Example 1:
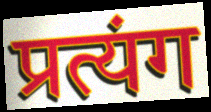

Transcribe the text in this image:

प्रत्यंग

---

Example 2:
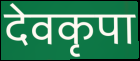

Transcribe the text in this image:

देवकृपा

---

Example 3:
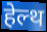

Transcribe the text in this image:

हेल्थ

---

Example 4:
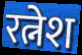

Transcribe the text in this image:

रत्नेश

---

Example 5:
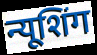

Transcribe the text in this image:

न्यूशिंग